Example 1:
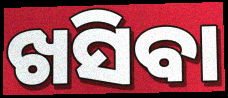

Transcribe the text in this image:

ଖସିବା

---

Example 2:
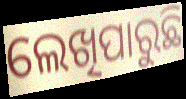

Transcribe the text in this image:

ଲେଖିପାରୁଛି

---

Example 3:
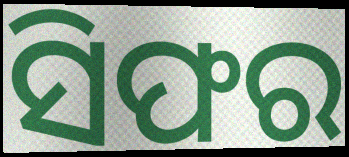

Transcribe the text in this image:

ସିଫର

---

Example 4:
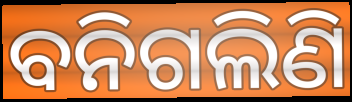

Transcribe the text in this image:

ବନିଗଲିଣି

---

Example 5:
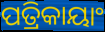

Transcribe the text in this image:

ପତ୍ରିକାୟାଂ